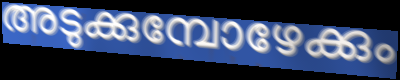
അടുക്കുമ്പോഴേക്കും